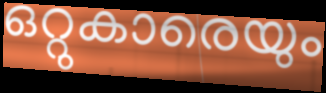
ഒറ്റുകാരെയും